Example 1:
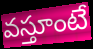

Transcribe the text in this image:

వస్తూంటే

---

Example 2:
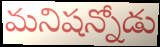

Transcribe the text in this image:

మనిషన్నోడు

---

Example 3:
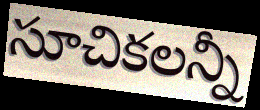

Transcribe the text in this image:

సూచికలన్నీ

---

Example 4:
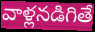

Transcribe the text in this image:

వాళ్లనడిగితే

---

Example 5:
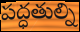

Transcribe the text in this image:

పద్ధతుల్ని